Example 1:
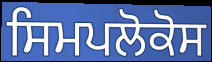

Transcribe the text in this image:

ਸਿਮਪਲੋਕੋਸ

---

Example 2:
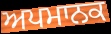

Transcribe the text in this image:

ਅਪਮਾਨਕ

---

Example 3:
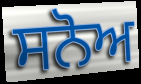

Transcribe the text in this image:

ਸਨੋਅ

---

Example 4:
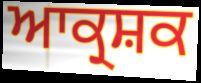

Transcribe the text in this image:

ਆਕ੍ਰਸ਼ਕ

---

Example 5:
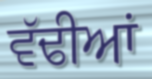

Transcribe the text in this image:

ਵੱਢੀਆਂ